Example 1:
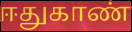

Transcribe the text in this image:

ஈதுகாண்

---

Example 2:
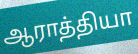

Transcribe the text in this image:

ஆராத்தியா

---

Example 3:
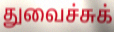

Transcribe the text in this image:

துவைச்சுக்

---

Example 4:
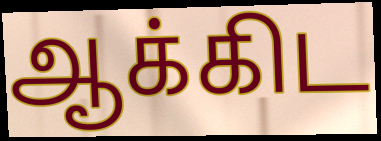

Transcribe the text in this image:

ஆக்கிட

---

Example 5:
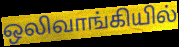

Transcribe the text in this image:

ஒலிவாங்கியில்